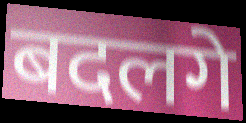
बदलगे